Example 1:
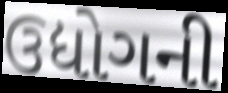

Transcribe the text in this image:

ઉદ્યોગની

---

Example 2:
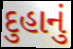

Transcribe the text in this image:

દુહાનું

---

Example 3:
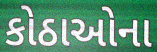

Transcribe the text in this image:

કોઠાઓના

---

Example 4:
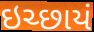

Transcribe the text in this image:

ઇચ્છાયં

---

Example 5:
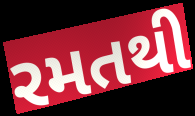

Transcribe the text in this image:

રમતથી